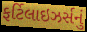
ફર્ટિલાઇઝર્સનું